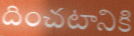
దించటానికి